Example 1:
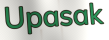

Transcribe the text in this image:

Upasak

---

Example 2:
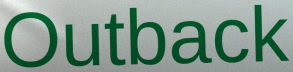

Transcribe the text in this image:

Outback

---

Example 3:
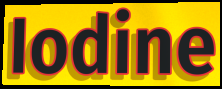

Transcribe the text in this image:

Iodine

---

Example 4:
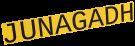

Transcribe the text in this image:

JUNAGADH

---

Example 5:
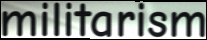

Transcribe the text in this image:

militarism